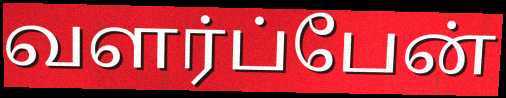
வளர்ப்பேன்